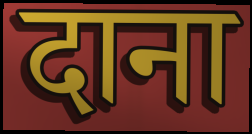
दाना